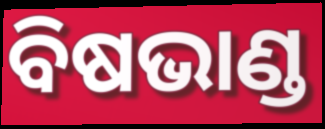
ବିଷଭାଣ୍ଡ